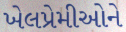
ખેલપ્રેમીઓને